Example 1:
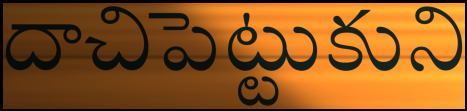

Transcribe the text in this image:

దాచిపెట్టుకుని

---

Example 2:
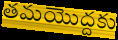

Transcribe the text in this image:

తమయొద్దకు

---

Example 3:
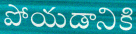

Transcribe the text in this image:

పోయడానికి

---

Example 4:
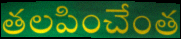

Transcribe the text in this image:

తలపించేంత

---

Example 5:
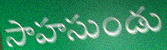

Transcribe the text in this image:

సాహసుండు